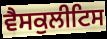
ਵੈਸਕੁਲੀਟਿਸ